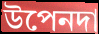
উপেনদা